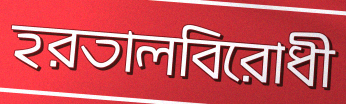
হরতালবিরোধী